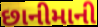
છાનીમાની